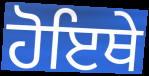
ਹੋਇਥੇ